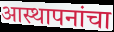
आस्थापनांचा